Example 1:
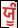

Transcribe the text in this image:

ਯੂੰ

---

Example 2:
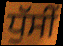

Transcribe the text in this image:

ਧੁੱਸੀਂ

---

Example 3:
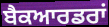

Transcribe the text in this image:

ਬੈਕਆਰਡਰਾਂ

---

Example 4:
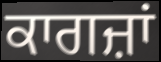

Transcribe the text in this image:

ਕਾਗਜ਼ਾਂ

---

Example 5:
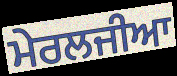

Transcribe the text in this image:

ਮੇਰਲਜੀਆ